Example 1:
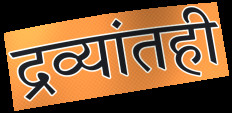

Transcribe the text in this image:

द्रव्यांतही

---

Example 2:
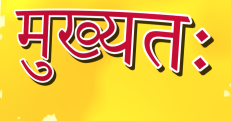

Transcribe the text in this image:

मुख्यतः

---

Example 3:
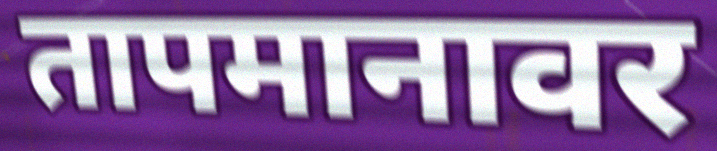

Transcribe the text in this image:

तापमानावर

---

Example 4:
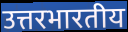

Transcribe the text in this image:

उत्तरभारतीय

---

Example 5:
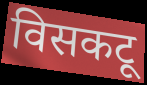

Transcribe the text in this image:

विसकटू